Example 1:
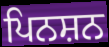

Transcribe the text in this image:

ਪਿਨਸ਼ਨ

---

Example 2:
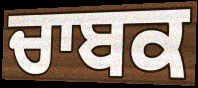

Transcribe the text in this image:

ਚਾਬਕ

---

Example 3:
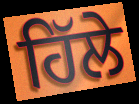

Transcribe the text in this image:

ਹਿੱਲੇ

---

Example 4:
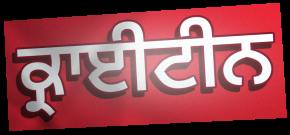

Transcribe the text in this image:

ਕ੍ਰਾਈਟੀਨ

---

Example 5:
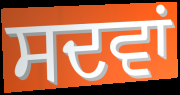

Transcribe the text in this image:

ਸਦਵਾਂ